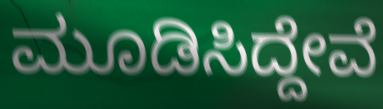
ಮೂಡಿಸಿದ್ದೇವೆ